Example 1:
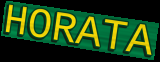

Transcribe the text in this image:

HORATA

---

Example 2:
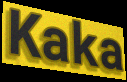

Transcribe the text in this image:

Kaka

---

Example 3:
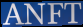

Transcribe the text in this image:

ANFT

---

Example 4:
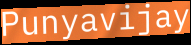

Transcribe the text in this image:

Punyavijay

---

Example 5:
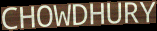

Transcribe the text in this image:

CHOWDHURY